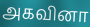
அகவினா